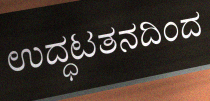
ಉದ್ಧಟತನದಿಂದ